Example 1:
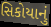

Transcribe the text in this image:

સિકોયાનું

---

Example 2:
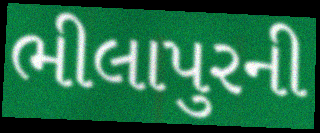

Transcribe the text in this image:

ભીલાપુરની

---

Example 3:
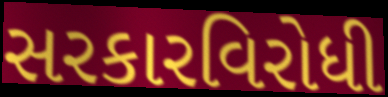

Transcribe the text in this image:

સરકારવિરોધી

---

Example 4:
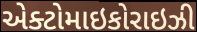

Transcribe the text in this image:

એક્ટોમાઇકોરાઇઝી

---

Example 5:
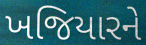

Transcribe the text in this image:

ખજિયારને